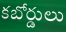
కబోర్డులు